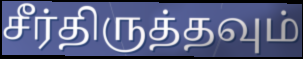
சீர்திருத்தவும்